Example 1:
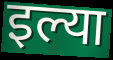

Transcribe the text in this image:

इल्या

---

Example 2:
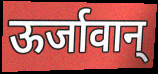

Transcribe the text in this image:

ऊर्जावान्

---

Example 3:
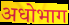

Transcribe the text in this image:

अधोभाग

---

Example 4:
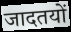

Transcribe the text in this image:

जादतयों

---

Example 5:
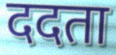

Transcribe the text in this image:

ददता